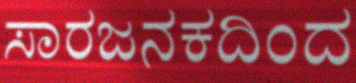
ಸಾರಜನಕದಿಂದ